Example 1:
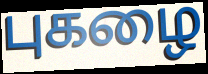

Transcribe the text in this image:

புகழை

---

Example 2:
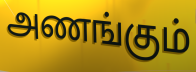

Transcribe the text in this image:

அணங்கும்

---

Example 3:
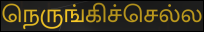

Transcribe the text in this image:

நெருங்கிச்செல்ல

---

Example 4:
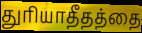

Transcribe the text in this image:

துரியாதீதத்தை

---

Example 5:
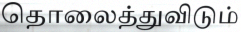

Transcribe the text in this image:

தொலைத்துவிடும்